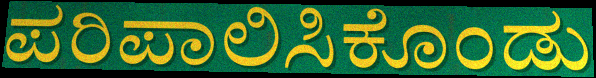
ಪರಿಪಾಲಿಸಿಕೊಂಡು